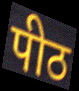
पीठ